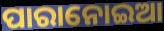
ପାରାନୋଇଆ